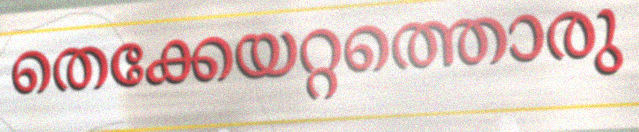
തെക്കേയറ്റത്തൊരു